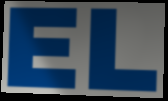
EL